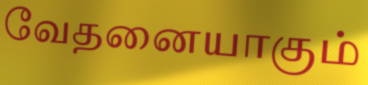
வேதனையாகும்